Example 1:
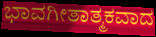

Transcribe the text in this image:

ಭಾವಗೀತಾತ್ಮಕವಾದ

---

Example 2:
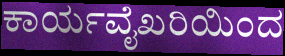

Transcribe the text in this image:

ಕಾರ್ಯವೈಖರಿಯಿಂದ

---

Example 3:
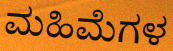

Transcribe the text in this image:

ಮಹಿಮೆಗಳ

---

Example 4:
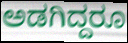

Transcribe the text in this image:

ಅಡಗಿದ್ದರೂ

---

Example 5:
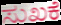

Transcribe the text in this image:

ಸುಖಕೆ